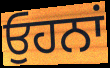
ਓੁਹਨਾਂ